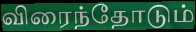
விரைந்தோடும்